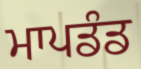
ਮਾਪਡੰਡ